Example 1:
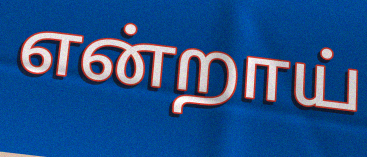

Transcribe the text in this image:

என்றாய்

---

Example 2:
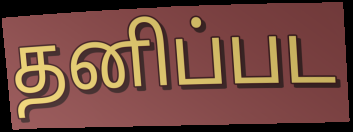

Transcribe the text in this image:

தனிப்பட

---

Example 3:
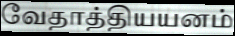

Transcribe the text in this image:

வேதாத்தியயனம்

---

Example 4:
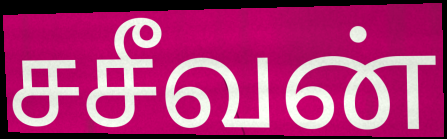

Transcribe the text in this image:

சசீவன்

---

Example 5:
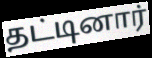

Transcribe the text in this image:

தட்டினார்